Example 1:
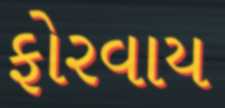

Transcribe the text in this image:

ફોરવાય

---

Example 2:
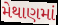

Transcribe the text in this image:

મેથાણમાં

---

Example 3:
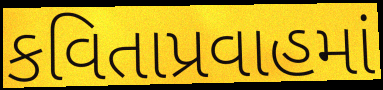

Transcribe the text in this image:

કવિતાપ્રવાહમાં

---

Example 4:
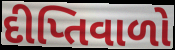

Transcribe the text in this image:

દીપ્તિવાળો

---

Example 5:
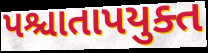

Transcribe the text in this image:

પશ્ચાતાપયુક્ત